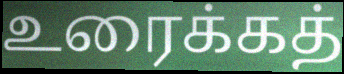
உரைக்கத்